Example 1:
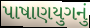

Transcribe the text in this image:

પાષાણયુગનું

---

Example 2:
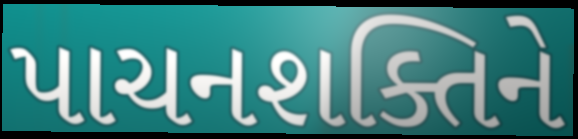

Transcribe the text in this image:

પાચનશક્તિને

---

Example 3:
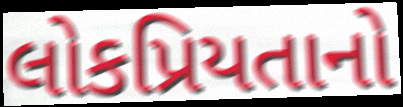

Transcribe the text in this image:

લોકપ્રિયતાનો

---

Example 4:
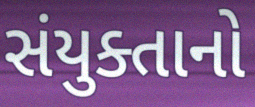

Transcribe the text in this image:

સંયુક્તાનો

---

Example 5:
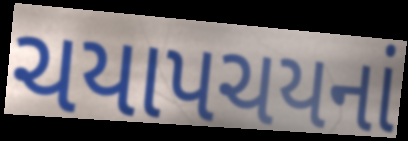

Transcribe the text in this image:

ચયાપચયનાં